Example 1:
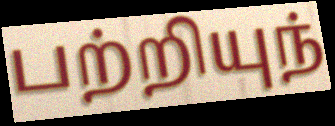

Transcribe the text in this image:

பற்றியுந்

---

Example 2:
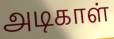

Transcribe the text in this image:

அடிகாள்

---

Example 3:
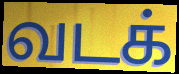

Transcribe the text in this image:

வடக்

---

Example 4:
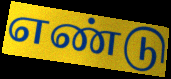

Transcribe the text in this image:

எண்டு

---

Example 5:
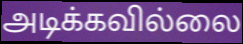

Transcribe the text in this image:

அடிக்கவில்லை